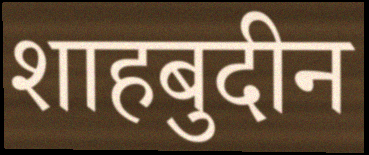
शाहबुदीन